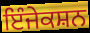
ਇੰਜੇਕਸ਼ਨ